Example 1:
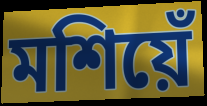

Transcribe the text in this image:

মশিয়েঁ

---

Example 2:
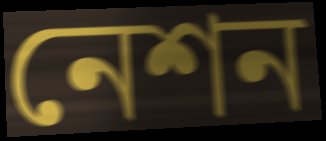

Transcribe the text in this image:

নেশন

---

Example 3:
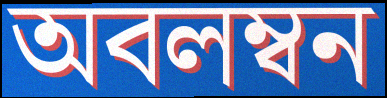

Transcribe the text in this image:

অবলম্বন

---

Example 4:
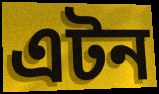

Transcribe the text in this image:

এটন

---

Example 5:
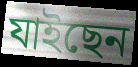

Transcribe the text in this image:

যাইছেন